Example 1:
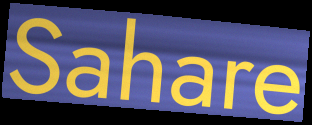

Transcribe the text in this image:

Sahare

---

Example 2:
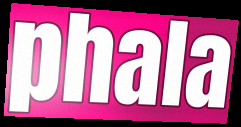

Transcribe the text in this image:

phala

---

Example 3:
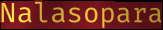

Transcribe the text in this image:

Nalasopara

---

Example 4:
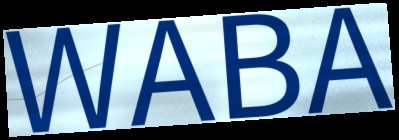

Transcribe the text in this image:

WABA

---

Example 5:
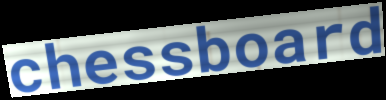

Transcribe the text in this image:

chessboard